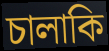
চালাকি